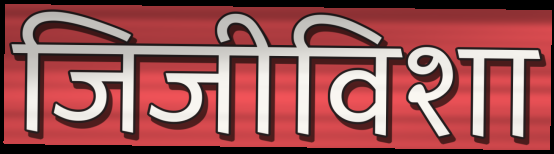
जिजीविशा